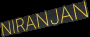
NIRANJAN